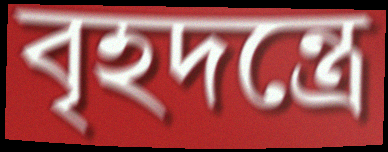
বৃহদন্ত্রে